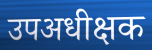
उपअधीक्षक